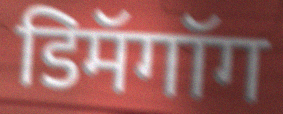
डिमॅगॉग